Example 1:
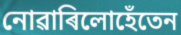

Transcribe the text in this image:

নোৱাৰিলোহেঁতেন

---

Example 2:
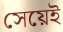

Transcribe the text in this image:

সেয়েই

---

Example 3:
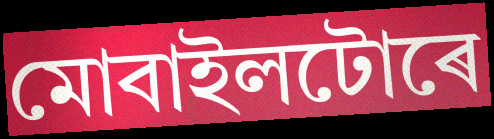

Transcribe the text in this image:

মোবাইলটোৰে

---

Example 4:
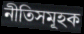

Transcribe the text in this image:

নীতিসমূহক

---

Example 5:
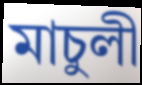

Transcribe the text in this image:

মাচুলী